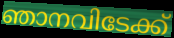
ഞാനവിടേക്ക്